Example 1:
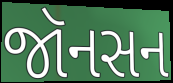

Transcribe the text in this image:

જૉનસન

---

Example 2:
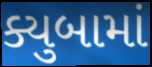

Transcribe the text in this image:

ક્યુબામાં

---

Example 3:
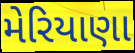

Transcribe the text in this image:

મેરિયાણા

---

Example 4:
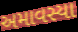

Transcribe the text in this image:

અમાવસ્યા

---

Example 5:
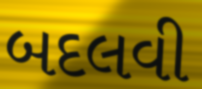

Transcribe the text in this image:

બદલવી